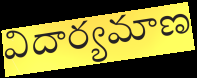
విదార్యమాణ